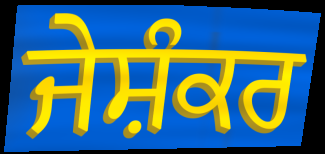
ਜੇਸ਼ੰਕਰ